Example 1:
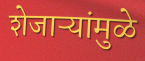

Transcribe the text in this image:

शेजाऱ्यांमुळे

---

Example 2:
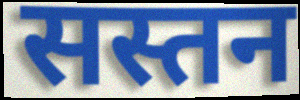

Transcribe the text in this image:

सस्तन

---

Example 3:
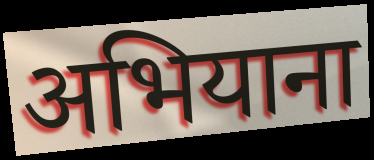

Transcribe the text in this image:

अभियाना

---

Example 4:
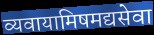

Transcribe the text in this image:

व्यवायामिषमद्यसेवा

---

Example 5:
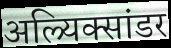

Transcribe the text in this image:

अल्यिक्सांडर